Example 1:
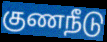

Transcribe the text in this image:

குணநீடு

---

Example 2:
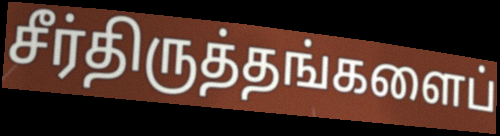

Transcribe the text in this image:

சீர்திருத்தங்களைப்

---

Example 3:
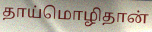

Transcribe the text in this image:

தாய்மொழிதான்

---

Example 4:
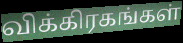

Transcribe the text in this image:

விக்கிரகங்கள்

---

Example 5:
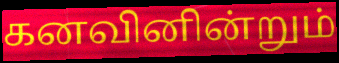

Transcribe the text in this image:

கனவினின்றும்